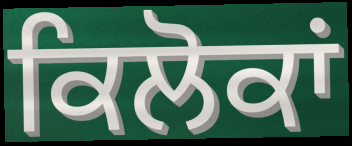
ਕਿਲੋਕਾਂ